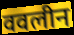
ववलीन